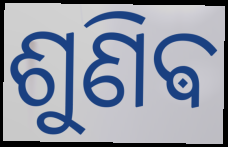
ଶୁଣିଵ